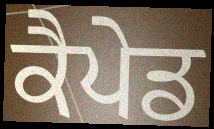
ਕੈਪੇਡ